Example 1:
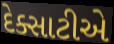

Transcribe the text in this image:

દેક્સાટીએ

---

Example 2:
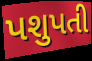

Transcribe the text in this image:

પશુપતી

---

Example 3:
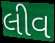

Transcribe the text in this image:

લીવ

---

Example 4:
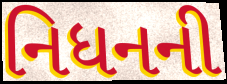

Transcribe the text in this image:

નિધનની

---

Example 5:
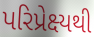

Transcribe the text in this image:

પરિપ્રેક્ષ્યથી